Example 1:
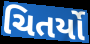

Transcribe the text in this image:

ચિતર્યો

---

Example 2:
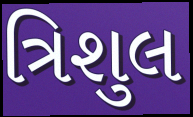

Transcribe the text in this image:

ત્રિશુલ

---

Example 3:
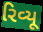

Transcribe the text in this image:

રિવ્યૂ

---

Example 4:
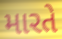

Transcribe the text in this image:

મારતે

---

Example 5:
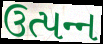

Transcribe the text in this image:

ઉત્પન્‍ન